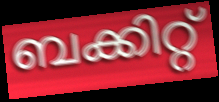
ബക്കിറ്റ്